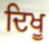
ਦਿਖੂ